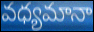
వధ్యమానా